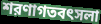
শরণাগতবৎসলা